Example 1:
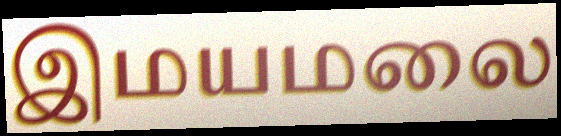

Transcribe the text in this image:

இமயமலை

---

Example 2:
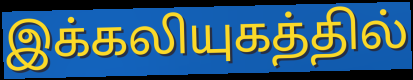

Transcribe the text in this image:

இக்கலியுகத்தில்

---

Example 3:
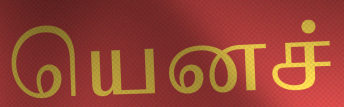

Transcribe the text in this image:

யெனச்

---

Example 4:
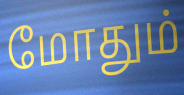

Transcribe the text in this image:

மோதும்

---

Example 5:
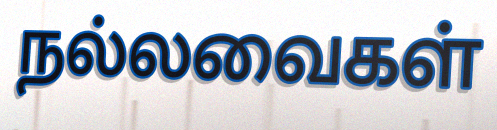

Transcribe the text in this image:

நல்லவைகள்